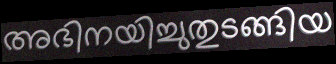
അഭിനയിച്ചുതുടങ്ങിയ